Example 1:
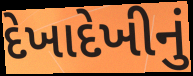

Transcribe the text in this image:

દેખાદેખીનું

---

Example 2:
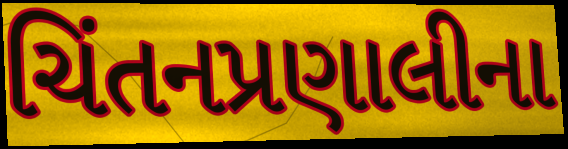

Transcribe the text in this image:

ચિંતનપ્રણાલીના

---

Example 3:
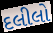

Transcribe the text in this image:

દલીલો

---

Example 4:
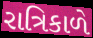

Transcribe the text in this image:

રાત્રિકાળે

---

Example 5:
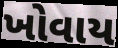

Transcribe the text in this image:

ખોવાય